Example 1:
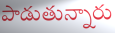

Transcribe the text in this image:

పాడుతున్నారు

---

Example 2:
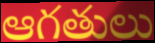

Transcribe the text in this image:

ఆగతులు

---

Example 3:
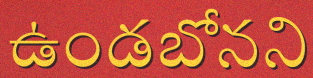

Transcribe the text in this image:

ఉండబోనని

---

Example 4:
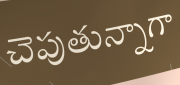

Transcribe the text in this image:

చెపుతున్నాగా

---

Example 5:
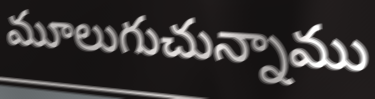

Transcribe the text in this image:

మూలుగుచున్నాము